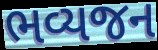
ભવ્યજન